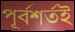
পূর্বশর্তই